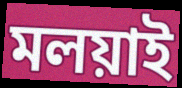
মলয়াই